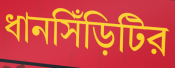
ধানসিঁড়িটির